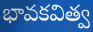
భావకవిత్వ